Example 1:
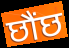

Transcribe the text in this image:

छौंछ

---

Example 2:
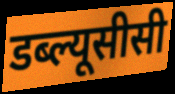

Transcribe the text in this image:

डब्ल्यूसीसी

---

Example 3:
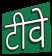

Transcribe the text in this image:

टीवे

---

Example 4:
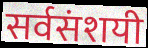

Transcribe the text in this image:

सर्वसंशयी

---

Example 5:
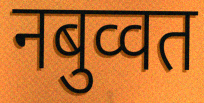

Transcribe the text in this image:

नबुव्वत